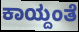
ಕಾಯ್ದಂತೆ